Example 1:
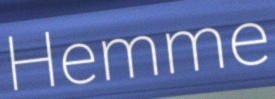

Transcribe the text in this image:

Hemme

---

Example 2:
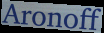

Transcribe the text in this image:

Aronoff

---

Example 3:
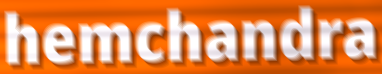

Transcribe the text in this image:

hemchandra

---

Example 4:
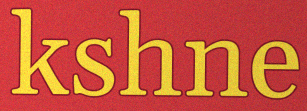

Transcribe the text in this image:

kshne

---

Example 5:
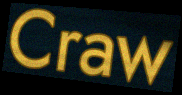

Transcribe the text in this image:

Craw